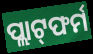
ପ୍ଲାଟ୍‌ଫର୍ମ